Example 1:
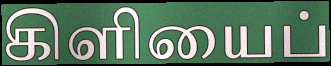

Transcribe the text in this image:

கிளியைப்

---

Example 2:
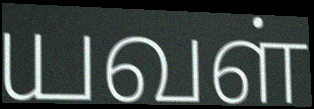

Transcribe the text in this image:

யவள்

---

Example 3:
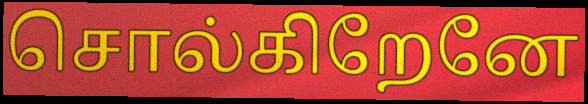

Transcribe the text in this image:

சொல்கிறேனே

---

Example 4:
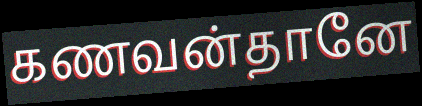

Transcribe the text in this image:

கணவன்தானே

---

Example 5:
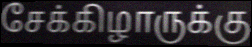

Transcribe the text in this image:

சேக்கிழாருக்கு